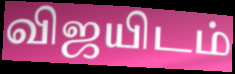
விஜயிடம்